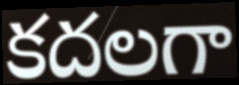
కదలగా